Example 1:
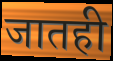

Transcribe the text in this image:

जातही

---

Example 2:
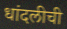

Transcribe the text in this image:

धांदलीची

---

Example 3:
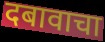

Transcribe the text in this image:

दबावाचा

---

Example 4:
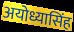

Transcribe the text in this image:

अयोध्यासिंह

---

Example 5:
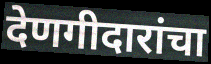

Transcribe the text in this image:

देणगीदारांचा